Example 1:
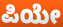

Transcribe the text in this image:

ಪಿಯೇ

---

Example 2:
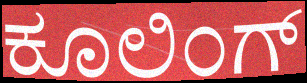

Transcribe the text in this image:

ಕೂಲಿಂಗ್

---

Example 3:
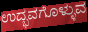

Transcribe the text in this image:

ಉದ್ಭವಗೊಳ್ಳುವ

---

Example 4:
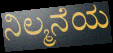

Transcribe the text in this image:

ನಿಲ್ಮನೆಯ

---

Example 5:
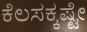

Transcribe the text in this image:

ಕೆಲಸಕ್ಕಷ್ಟೇ